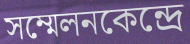
সম্মেলনকেন্দ্রে